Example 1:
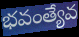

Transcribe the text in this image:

భవంత్యేవ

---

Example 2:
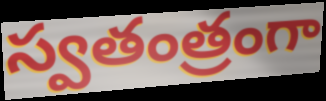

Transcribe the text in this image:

స్వతంత్రంగా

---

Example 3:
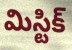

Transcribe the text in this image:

మిస్టిక్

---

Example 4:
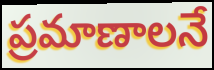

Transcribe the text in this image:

ప్రమాణాలనే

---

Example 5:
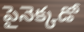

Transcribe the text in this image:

పైనెక్కడో